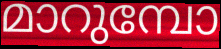
മാറുമ്പോ